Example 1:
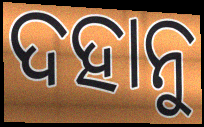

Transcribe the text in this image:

ଦହାନୁ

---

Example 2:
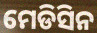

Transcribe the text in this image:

ମେଡିସିନ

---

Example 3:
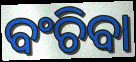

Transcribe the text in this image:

ବଂଚିବା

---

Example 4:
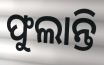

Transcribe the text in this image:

ଫୁଲାନ୍ତି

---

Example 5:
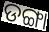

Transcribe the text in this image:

ଡଙ୍ଗା